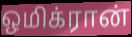
ஒமிக்ரான்